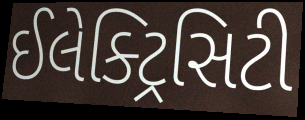
ઈલેક્ટ્રિસિટી